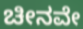
ಚೀನವೇ